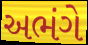
અભંગે